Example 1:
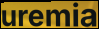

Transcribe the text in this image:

uremia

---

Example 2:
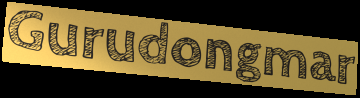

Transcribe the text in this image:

Gurudongmar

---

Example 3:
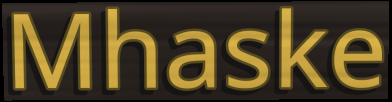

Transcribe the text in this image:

Mhaske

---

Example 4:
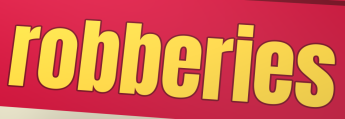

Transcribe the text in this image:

robberies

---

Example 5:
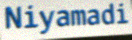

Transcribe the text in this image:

Niyamadi